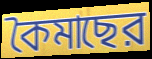
কৈমাছের